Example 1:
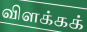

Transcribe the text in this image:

விளக்கக்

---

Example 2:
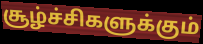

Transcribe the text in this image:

சூழ்ச்சிகளுக்கும்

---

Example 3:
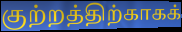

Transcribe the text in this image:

குற்றத்திற்காகக்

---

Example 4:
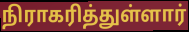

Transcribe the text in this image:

நிராகரித்துள்ளார்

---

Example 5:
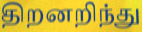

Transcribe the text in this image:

திறனறிந்து